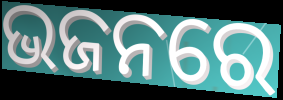
ଭଜନରେ